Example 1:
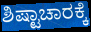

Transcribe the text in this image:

ಶಿಷ್ಟಾಚಾರಕ್ಕೆ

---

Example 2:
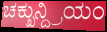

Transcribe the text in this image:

ಚಕ್ಖುನ್ದ್ರಿಯಂ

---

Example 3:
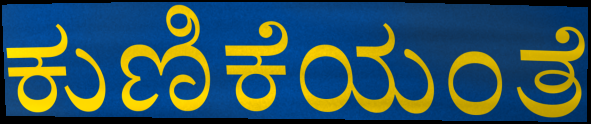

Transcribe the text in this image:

ಕುಣಿಕೆಯಂತೆ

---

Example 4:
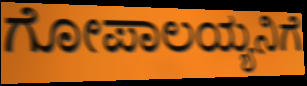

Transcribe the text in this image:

ಗೋಪಾಲಯ್ಯನಿಗೆ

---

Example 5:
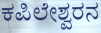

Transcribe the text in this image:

ಕಪಿಲೇಶ್ವರನ